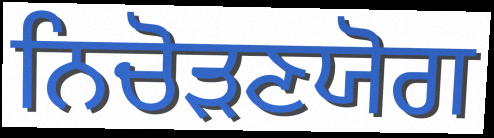
ਨਿਚੋੜਣਯੋਗ